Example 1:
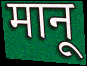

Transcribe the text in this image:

मानू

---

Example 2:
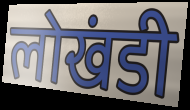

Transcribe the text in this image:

लोखंडी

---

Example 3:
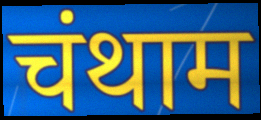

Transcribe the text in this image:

चंथाम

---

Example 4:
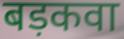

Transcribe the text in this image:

बड़कवा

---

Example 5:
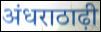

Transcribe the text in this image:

अंधराठाढ़ी